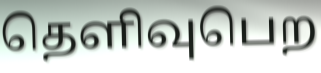
தெளிவுபெற